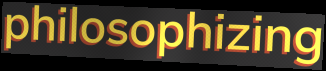
philosophizing